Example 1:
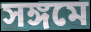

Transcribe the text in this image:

সঙ্গমে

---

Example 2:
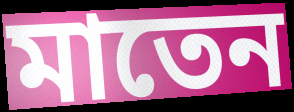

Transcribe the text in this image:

মাতেন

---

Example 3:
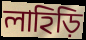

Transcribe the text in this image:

লাহিড়ি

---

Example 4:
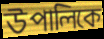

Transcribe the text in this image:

উপালিকে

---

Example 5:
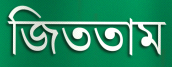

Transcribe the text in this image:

জিততাম